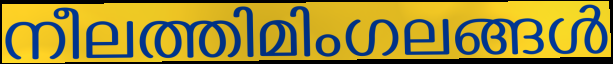
നീലത്തിമിംഗലങ്ങൾ